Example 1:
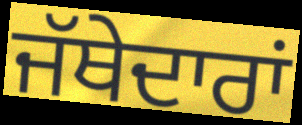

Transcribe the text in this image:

ਜੱਥੇਦਾਰਾਂ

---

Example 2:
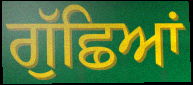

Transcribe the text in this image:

ਗੁੱਛਿਆਂ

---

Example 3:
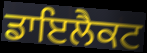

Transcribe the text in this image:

ਡਾਇਲੈਕਟ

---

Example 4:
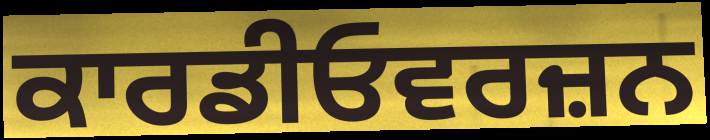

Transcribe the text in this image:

ਕਾਰਡੀਓਵਰਜ਼ਨ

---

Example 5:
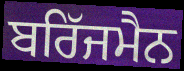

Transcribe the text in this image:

ਬਰਿੱਜਮੈਨ